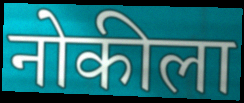
नोकीला